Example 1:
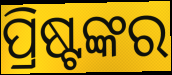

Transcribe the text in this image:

ପ୍ରିଷ୍ଟଙ୍କର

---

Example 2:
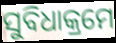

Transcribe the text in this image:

ସୁବିଧାକ୍ରମେ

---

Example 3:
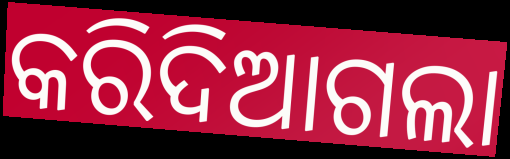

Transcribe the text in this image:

କରିଦିଆଗଲା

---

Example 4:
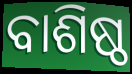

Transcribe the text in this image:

ବାଶିଷ୍ଠ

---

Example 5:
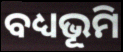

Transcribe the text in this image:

ବଧ୍ୟଭୂମି